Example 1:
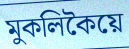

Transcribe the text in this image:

মুকলিকৈয়ে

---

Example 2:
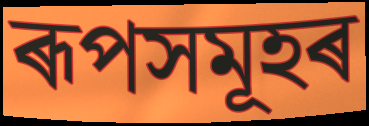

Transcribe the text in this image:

ৰূপসমূহৰ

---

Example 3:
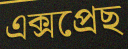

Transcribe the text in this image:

এক্সপ্ৰেছ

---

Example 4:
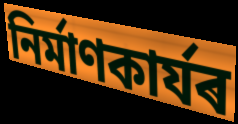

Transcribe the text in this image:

নিৰ্মাণকাৰ্যৰ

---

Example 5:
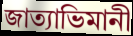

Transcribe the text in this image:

জাত্যাভিমানী